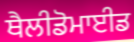
ਥੈਲੀਡੋਮਾਈਡ